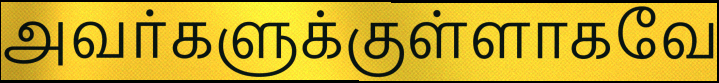
அவர்களுக்குள்ளாகவே